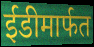
ईडीमार्फत